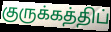
குருக்கத்திப்